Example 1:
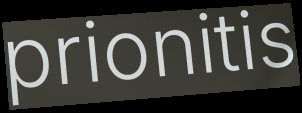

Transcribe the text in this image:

prionitis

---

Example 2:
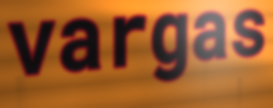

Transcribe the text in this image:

vargas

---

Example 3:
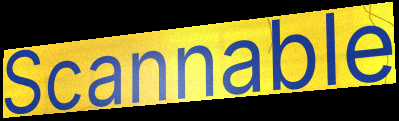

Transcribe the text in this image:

Scannable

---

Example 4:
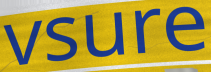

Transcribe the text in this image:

vsure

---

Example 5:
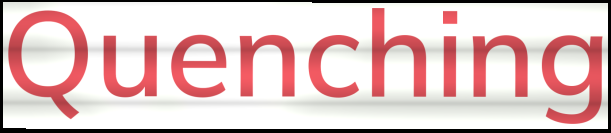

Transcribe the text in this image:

Quenching